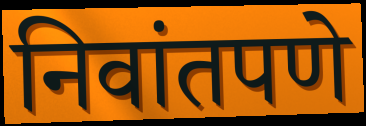
निवांतपणे